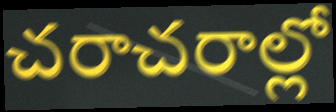
చరాచరాల్లో